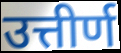
उत्तीर्ण